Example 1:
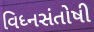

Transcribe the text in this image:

વિધ્નસંતોષી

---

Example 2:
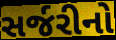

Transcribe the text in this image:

સર્જરીનો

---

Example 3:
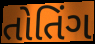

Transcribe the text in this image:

તોતિંગ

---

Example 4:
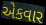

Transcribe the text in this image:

એકવાર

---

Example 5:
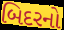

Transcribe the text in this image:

બિદરનો